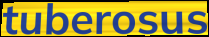
tuberosus